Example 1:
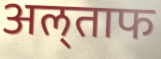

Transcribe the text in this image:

अल्ताफ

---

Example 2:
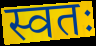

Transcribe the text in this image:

स्वतः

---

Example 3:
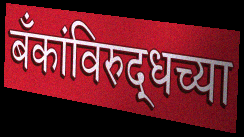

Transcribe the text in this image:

बँकांविरुद्धच्या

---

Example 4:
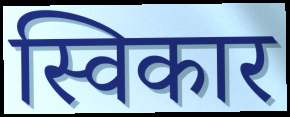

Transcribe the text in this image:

स्विकार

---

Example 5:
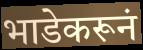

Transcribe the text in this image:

भाडेकरूनं